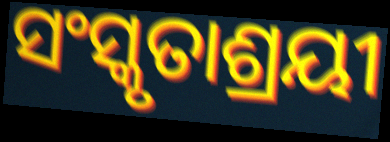
ସଂସ୍କୃତାଶ୍ରୟୀ